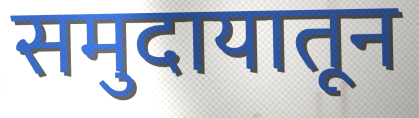
समुदायातून